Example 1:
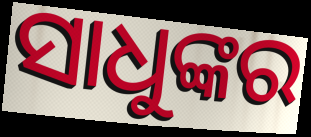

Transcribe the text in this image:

ସାଧୁଙ୍କର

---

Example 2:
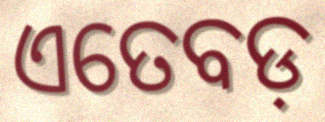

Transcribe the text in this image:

ଏତେବଡ଼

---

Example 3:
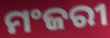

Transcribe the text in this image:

ମଂଜରୀ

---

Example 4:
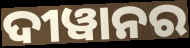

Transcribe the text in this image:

ଦୀୱାନର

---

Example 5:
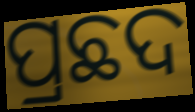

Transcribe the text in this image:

ପ୍ରଛଦ